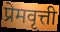
प्रेमवृत्ती